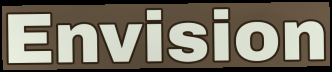
Envision